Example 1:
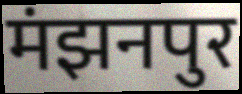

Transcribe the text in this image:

मंझनपुर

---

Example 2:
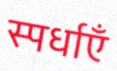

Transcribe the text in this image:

स्पर्धाएँ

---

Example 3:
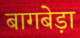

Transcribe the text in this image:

बागबेड़ा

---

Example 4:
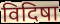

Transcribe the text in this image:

विदिषा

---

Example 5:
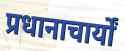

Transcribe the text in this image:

प्रधानाचार्यों